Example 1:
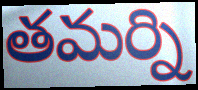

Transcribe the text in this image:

తమర్ని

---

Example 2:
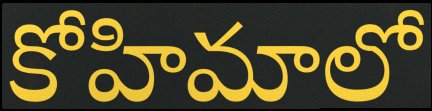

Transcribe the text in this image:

కోహిమాలో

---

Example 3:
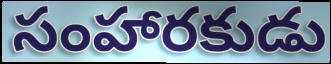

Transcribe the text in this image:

సంహారకుడు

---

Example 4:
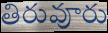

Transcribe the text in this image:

తిరువూరు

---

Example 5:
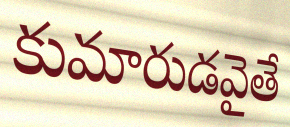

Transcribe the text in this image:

కుమారుడవైతే